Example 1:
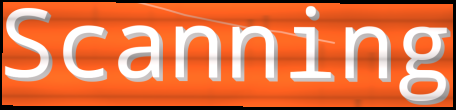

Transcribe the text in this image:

Scanning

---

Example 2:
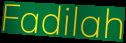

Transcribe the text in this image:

Fadilah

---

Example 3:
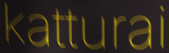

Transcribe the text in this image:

katturai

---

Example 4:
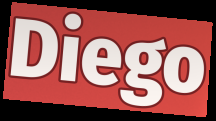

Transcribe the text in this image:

Diego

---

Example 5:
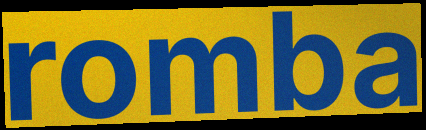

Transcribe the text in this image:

romba